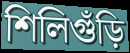
শিলিগুঁড়ি